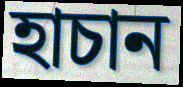
হাচান